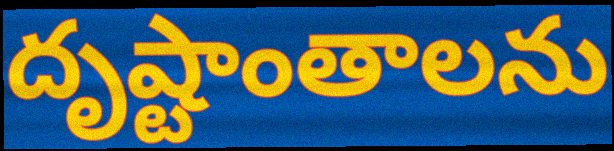
దృష్టాంతాలను